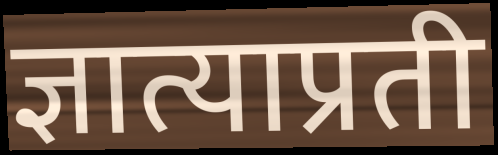
ज्ञात्याप्रती